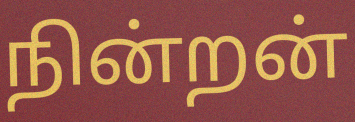
நின்றன்